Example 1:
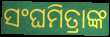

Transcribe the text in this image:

ସଂଘମିତ୍ରାଙ୍କ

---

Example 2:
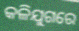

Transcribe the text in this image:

କଳିଯୁଗରେ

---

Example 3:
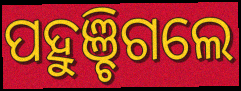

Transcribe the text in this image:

ପହୁଞ୍ଚିଗଲେ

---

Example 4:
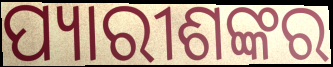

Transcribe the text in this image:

ପ୍ୟାରୀଶଙ୍କର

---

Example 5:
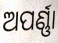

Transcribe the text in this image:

ଅପର୍ଣ୍ଣା